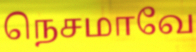
நெசமாவே